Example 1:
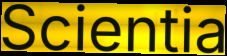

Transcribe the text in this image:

Scientia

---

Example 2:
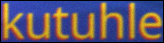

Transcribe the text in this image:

kutuhle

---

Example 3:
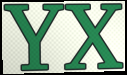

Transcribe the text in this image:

YX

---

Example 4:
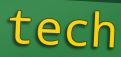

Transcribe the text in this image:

tech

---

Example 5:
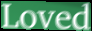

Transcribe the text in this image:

Loved